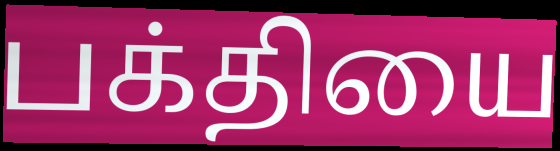
பக்தியை